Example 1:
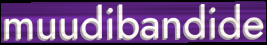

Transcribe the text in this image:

muudibandide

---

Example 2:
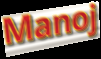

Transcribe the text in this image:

Manoj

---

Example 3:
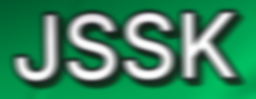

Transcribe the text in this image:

JSSK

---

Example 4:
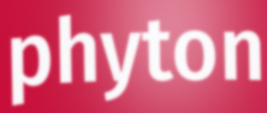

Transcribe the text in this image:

phyton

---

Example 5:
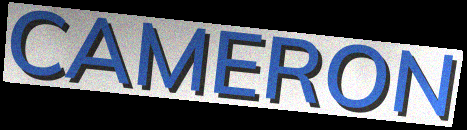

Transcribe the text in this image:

CAMERON